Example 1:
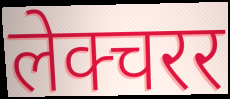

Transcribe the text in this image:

लेक्चरर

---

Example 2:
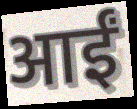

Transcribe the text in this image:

आईं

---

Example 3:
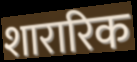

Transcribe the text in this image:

शारारिक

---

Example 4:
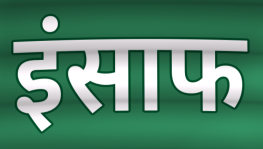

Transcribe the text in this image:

इंसाफ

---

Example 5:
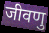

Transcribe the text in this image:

जीवणु